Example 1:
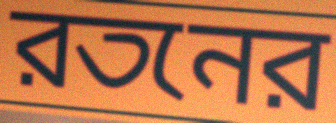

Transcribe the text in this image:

রতনের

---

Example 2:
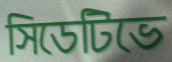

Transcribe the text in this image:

সিডেটিভে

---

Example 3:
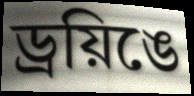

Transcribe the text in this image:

ড্রয়িঙে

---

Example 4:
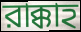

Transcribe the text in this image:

রাক্কাহ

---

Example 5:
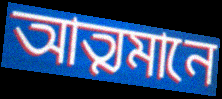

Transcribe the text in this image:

আত্মমানে